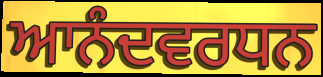
ਆਨੰਦਵਰਧਨ